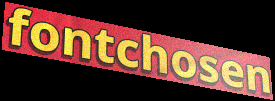
fontchosen